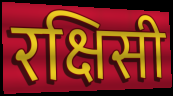
रक्षिसी